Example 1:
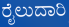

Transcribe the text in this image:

ರೈಲುದಾರಿ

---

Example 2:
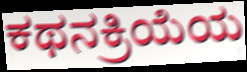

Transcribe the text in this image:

ಕಥನಕ್ರಿಯೆಯ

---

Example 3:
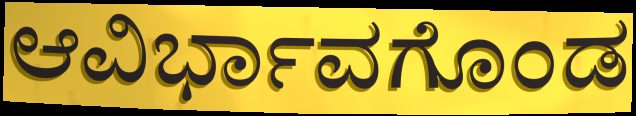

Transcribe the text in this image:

ಆವಿರ್ಭಾವಗೊಂಡ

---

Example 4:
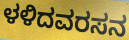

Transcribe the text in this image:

ಳಳಿದವರಸನ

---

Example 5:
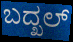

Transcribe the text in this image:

ಬದ್ಖಲ್